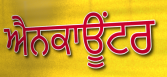
ਐਨਕਾਊਂਟਰ